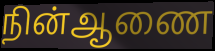
நின்ஆணை